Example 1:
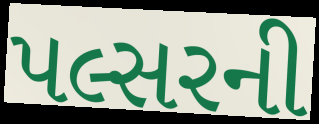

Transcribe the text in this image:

પલ્સરની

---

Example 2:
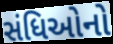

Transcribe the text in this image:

સંધિઓનો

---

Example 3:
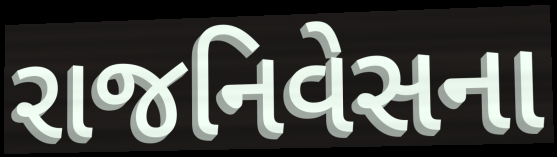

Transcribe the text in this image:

રાજનિવેસના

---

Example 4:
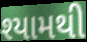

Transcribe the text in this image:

શ્યામથી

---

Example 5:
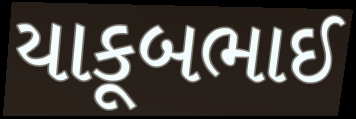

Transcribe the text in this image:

યાકૂબભાઈ